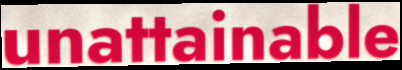
unattainable